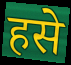
हसे